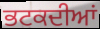
ਭਟਕਦੀਆਂ